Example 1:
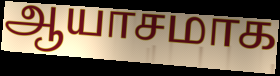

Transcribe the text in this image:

ஆயாசமாக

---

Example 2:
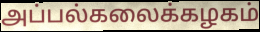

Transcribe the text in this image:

அப்பல்கலைக்கழகம்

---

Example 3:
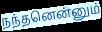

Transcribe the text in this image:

நந்தனென்னும்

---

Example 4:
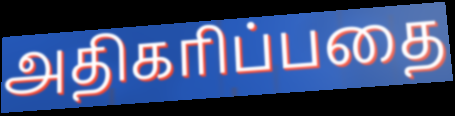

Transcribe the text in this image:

அதிகரிப்பதை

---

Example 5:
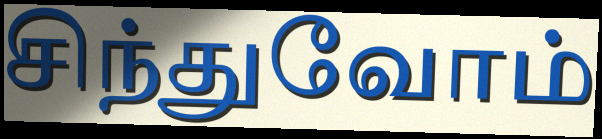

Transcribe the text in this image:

சிந்துவோம்